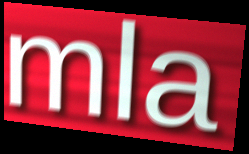
mla